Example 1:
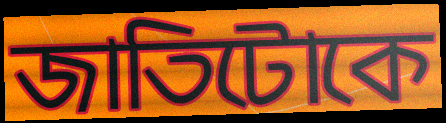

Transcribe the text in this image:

জাতিটোকে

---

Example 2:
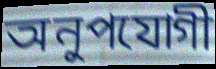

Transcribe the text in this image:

অনুপযোগী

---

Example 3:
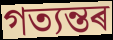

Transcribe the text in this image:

গত্যন্তৰ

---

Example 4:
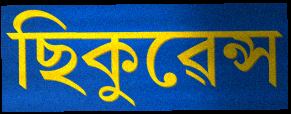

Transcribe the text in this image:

ছিকুৱেন্স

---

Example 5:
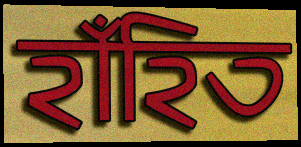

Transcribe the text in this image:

হাঁহিত